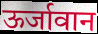
ऊर्जावान